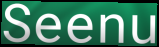
Seenu